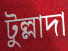
টুল্লাদা